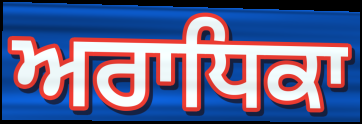
ਅਰਾਧਿਕਾ